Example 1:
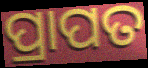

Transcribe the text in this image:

ପ୍ରାପତ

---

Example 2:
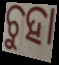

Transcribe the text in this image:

ଚୁହା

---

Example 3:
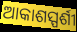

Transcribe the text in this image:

ଆକାଶସ୍ପର୍ଶୀ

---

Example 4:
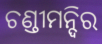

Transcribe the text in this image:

ଚଣ୍ଡୀମନ୍ଦିର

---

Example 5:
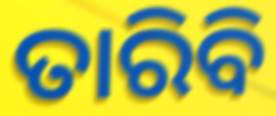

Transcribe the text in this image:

ତାରିବି